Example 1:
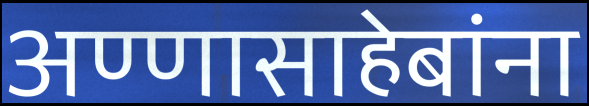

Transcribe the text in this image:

अण्णासाहेबांना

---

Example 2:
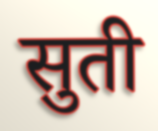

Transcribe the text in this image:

सुती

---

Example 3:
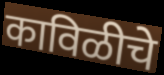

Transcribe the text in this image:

काविळीचे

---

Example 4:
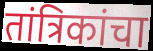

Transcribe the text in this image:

तांत्रिकांचा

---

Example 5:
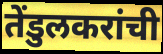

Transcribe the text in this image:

तेंडुलकरांची